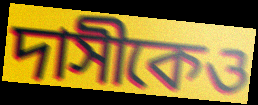
দাসীকেও